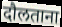
दौलताना